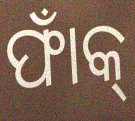
ଫାଁକ୍